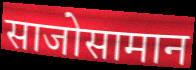
साजोसामान